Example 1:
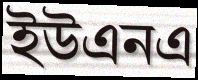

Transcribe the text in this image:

ইউএনএ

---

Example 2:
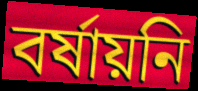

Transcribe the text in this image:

বর্ষায়নি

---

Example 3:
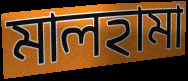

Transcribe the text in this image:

মালহামা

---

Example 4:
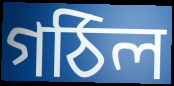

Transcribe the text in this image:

গঠিল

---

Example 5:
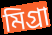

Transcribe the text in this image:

মিগ্রা